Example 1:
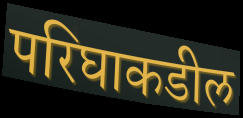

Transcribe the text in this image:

परिघाकडील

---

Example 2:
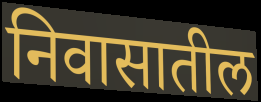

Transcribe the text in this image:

निवासातील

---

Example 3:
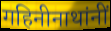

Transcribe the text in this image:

गहिनीनाथांनीं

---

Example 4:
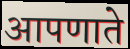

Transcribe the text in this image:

आपणाते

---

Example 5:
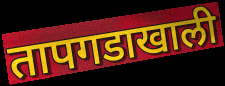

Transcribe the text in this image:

तापगडाखाली